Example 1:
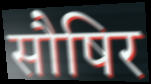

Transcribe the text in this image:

सौषिर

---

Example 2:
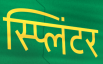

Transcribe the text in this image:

स्प्लिंटर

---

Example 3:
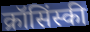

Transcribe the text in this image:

क्रॉसिंस्की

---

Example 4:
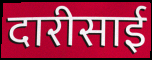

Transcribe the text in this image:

दारीसाई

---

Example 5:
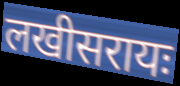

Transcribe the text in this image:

लखीसरायः